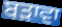
ਬੜਾਵਾ